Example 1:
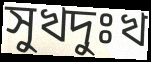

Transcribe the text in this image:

সুখদুঃখ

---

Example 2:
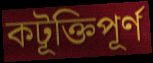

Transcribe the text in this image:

কটূক্তিপূর্ণ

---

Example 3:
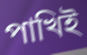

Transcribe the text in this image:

পাখিই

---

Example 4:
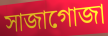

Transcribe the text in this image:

সাজাগোজা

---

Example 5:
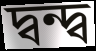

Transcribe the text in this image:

দ্বন্দ্ব